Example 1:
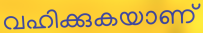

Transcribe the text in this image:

വഹിക്കുകയാണ്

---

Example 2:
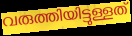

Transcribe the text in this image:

വരുത്തിയിട്ടുള്ളത്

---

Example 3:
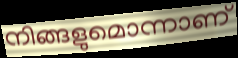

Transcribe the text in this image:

നിങ്ങളുമൊന്നാണ്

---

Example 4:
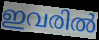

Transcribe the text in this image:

ഇവരിൽ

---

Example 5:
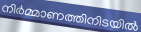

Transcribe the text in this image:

നിർമ്മാണത്തിനിടയിൽ